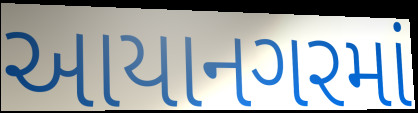
આયાનગરમાં